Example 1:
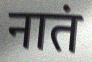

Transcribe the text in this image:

नातं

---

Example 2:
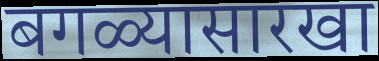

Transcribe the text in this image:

बगळ्यासारखा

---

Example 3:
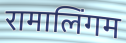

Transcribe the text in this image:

रामालिंगम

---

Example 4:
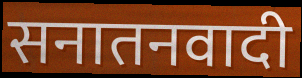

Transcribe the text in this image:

सनातनवादी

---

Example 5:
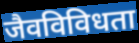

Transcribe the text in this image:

जैवविविधता